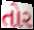
તોર